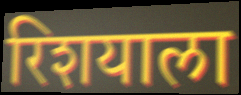
रिशयाला